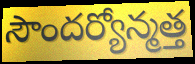
సౌందర్యోన్మత్త